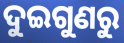
ଦୁଇଗୁଣରୁ